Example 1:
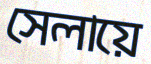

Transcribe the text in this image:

সেলায়ে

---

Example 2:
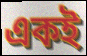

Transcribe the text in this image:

একই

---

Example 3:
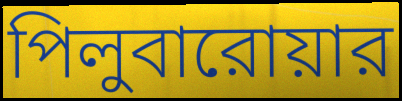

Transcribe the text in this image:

পিলুবারোয়ার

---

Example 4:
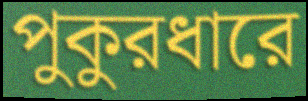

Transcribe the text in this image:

পুকুরধারে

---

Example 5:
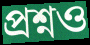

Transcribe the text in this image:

প্রশ্নও